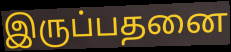
இருப்பதனை